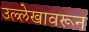
उल्लेखावरून